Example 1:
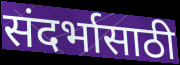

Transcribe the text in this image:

संदर्भासाठी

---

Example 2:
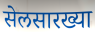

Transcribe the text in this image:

सेलसारख्या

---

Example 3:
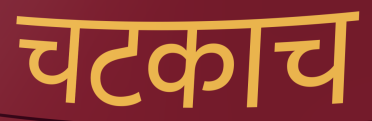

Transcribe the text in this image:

चटकाच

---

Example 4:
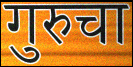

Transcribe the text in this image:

गुरुचा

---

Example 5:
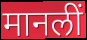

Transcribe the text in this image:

मानलीं